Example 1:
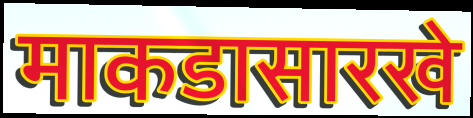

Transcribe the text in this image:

माकडासारखे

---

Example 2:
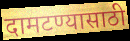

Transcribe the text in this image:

दामटण्यासाठी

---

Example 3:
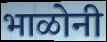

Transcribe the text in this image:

भाळोनी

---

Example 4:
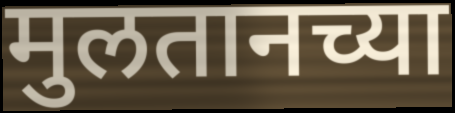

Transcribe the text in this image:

मुलतानच्या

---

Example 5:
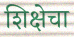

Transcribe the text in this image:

शिक्षेचा